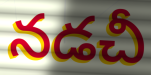
నడచీ